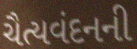
ચૈત્યવંદનની